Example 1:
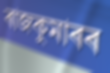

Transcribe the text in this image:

ৰাজকুমাৰৰ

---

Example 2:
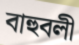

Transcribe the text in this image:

বাহুবলী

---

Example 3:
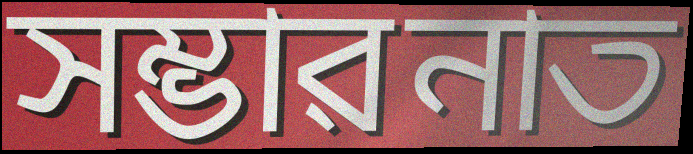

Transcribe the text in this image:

সম্ভাৱনাত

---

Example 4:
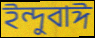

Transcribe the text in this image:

ইন্দুবাঈ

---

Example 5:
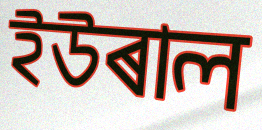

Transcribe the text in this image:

ইউৰাল